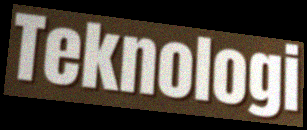
Teknologi